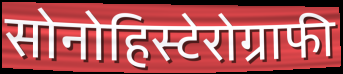
सोनोहिस्टेरोग्राफी